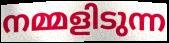
നമ്മളിടുന്ന